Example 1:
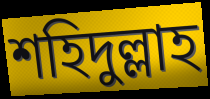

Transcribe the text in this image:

শহিদুল্লাহ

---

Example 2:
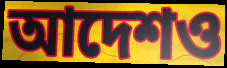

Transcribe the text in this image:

আদেশও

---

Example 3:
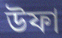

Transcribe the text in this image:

উফা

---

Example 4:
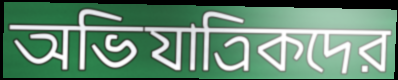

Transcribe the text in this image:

অভিযাত্রিকদের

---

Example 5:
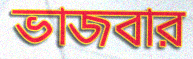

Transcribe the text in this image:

ভাজবার